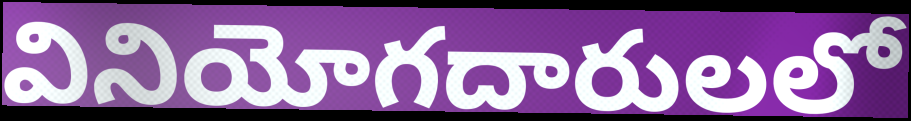
వినియోగదారులలో